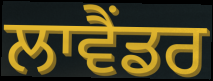
ਲਾਵੈਂਡਰ